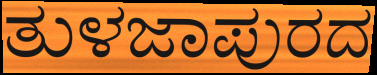
ತುಳಜಾಪುರದ